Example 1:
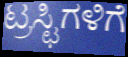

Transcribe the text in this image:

ಟ್ರಸ್ಟಿಗಳಿಗೆ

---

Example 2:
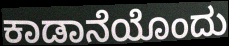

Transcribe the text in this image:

ಕಾಡಾನೆಯೊಂದು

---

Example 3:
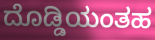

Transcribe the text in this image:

ದೊಡ್ಡಿಯಂತಹ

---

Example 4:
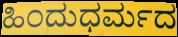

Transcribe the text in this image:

ಹಿಂದುಧರ್ಮದ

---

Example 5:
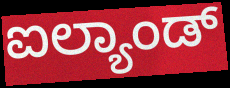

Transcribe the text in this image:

ಐಲ್ಯಾಂಡ್